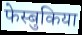
फेस्बुकिया